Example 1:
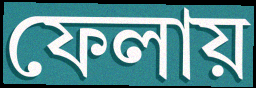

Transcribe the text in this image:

ফেলায়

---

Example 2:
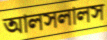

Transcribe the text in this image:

আলসলালস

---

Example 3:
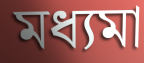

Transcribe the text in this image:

মধ্যমা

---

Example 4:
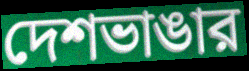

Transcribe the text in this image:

দেশভাঙার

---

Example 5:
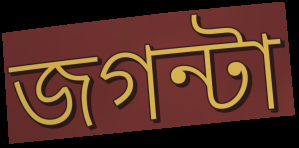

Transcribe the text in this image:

জগন্টা